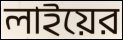
লাইয়ের